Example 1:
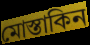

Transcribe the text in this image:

মোস্তাকিন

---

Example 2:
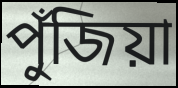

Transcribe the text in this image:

পুঁজিয়া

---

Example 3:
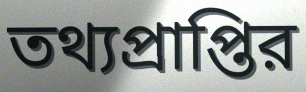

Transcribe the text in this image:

তথ্যপ্রাপ্তির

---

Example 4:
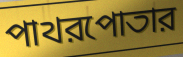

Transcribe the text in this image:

পাথরপোতার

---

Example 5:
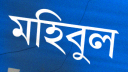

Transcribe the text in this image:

মহিবুল